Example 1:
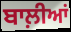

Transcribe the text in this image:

ਬਾਲ਼ੀਆਂ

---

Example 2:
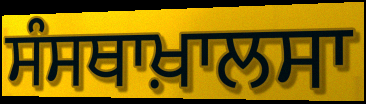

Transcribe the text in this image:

ਸੰਸਥਾਖ਼ਾਲਸਾ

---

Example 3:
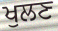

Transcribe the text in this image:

ਖੁਲਣ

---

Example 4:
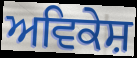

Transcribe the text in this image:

ਅਵਿਕੇਸ਼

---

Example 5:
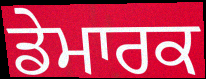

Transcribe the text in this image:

ਡੇਮਾਰਕ